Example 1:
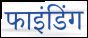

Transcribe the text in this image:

फाइंडिंग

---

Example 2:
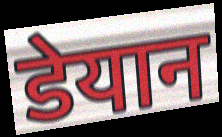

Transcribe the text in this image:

डेयान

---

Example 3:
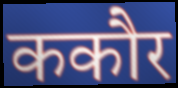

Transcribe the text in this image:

ककौर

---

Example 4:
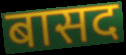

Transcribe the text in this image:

बासद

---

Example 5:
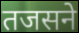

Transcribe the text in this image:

तजसने